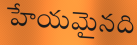
హేయమైనది